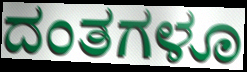
ದಂತಗಳೂ